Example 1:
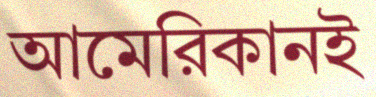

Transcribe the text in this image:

আমেরিকানই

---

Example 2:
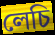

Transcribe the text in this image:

লেচি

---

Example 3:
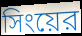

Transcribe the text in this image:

সিংয়ের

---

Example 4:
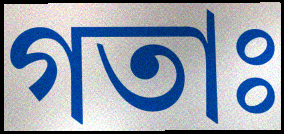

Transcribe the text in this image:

গতাঃ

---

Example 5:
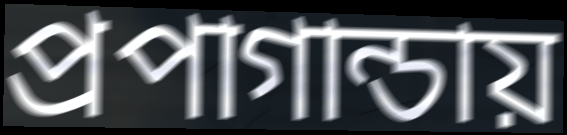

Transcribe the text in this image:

প্রপাগান্ডায়